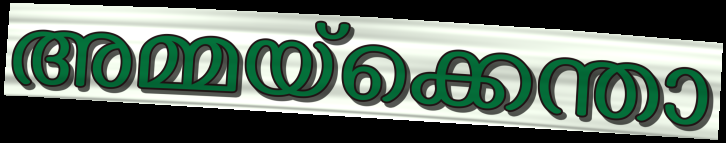
അമ്മയ്‌ക്കെന്താ